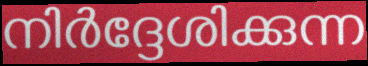
നിർദ്ദേശിക്കുന്ന